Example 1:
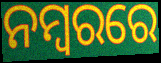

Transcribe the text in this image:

ନମ୍ବରରେ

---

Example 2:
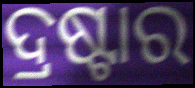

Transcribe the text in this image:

ଦ୍ରଷ୍ଟାର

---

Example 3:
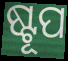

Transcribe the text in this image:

ଷ୍ଟୂପ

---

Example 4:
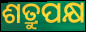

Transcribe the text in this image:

ଶତ୍ରୁପକ୍ଷ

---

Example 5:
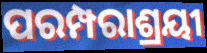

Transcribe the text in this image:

ପରମ୍ପରାଶ୍ରୟୀ